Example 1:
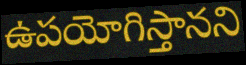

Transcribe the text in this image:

ఉపయోగిస్తానని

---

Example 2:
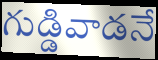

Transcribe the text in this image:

గుడ్డివాడనే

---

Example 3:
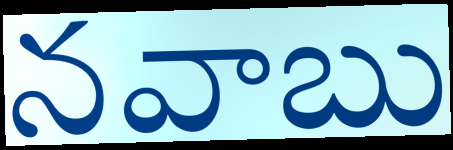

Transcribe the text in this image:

నవాబు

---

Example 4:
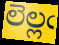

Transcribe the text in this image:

లెల్లఁ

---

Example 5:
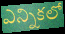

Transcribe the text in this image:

ఎన్నికలో